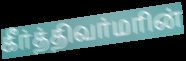
கீர்த்திவர்மரின்